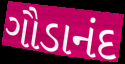
ગૌડાનંદ